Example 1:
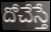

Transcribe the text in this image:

దోచేస్తే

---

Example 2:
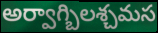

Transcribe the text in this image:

అర్వాగ్బిలశ్చమస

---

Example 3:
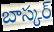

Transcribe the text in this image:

బాస్కర్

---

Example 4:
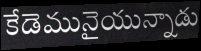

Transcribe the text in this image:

కేడెమునైయున్నాడు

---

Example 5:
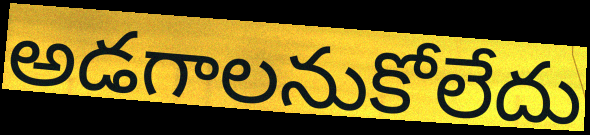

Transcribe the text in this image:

అడగాలనుకోలేదు